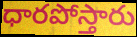
ధారపోస్తారు